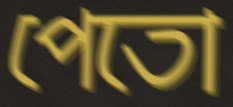
পেতো